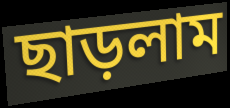
ছাড়লাম